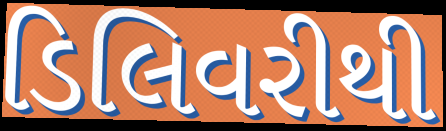
ડિલિવરીથી